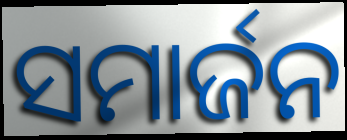
ସମାର୍ଜନ